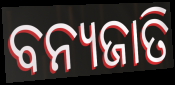
ବନ୍ୟଜାତି